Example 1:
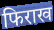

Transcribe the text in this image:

फिराख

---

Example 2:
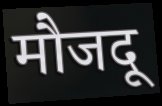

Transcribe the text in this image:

मौजदू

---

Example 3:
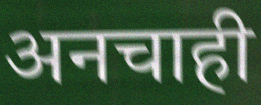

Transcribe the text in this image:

अनचाही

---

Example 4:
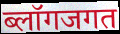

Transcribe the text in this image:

ब्लॉगजगत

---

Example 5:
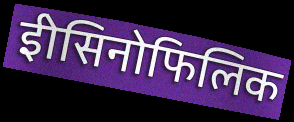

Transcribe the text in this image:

ईोसिनोफिलिक